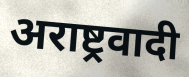
अराष्ट्रवादी